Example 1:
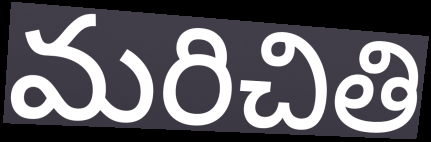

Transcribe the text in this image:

మరిచితి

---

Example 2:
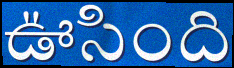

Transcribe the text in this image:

ఊసింది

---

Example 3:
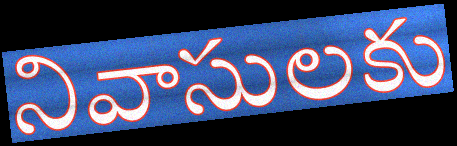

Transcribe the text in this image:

నివాసులకు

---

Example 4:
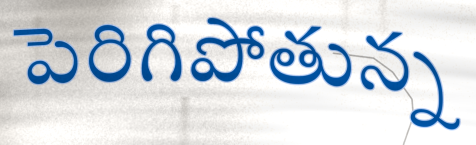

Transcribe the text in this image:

పెరిగిపోతున్న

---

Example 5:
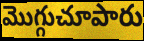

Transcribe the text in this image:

మొగ్గుచూపారు